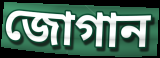
জোগান